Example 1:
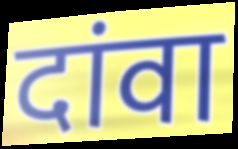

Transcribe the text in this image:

दांवा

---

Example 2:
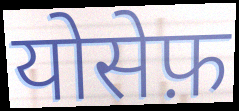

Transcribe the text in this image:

योसेफ़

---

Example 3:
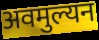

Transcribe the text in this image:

अवमुल्यन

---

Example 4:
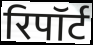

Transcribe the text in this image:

रिपॉर्ट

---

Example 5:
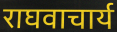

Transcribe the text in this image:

राघवाचार्य